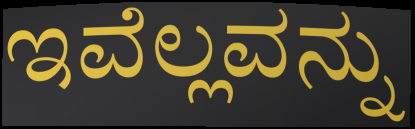
ಇವೆಲ್ಲವನ್ನು